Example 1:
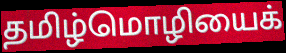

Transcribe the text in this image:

தமிழ்மொழியைக்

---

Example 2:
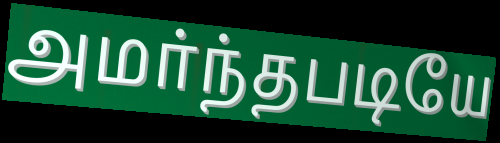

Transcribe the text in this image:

அமர்ந்தபடியே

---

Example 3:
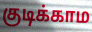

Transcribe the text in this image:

குடிக்காம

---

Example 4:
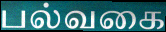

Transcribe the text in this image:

பல்வகை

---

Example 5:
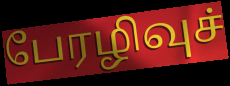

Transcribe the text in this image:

பேரழிவுச்